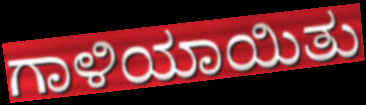
ಗಾಳಿಯಾಯಿತು